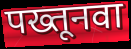
पख्तूनवा